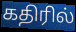
கதிரில்